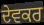
ਦੇਵਕਰ